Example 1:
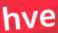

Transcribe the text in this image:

hve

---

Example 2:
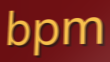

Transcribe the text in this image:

bpm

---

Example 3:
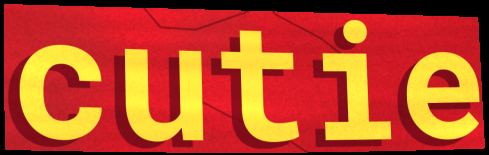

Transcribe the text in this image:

cutie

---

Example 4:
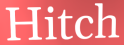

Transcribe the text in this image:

Hitch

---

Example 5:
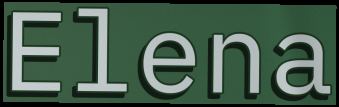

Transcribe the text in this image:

Elena